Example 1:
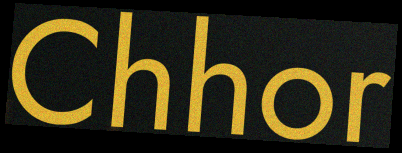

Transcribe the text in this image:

Chhor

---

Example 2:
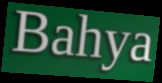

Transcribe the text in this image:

Bahya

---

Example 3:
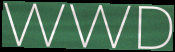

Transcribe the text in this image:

WWD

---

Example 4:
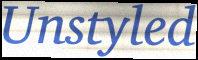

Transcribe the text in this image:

Unstyled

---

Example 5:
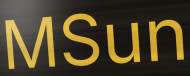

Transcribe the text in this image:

MSun